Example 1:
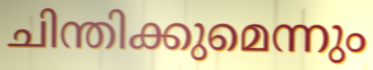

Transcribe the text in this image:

ചിന്തിക്കുമെന്നും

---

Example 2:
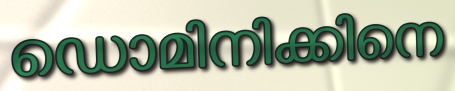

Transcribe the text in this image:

ഡൊമിനിക്കിനെ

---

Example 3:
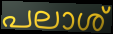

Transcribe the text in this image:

പലാശ്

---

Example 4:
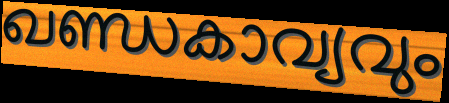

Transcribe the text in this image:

ഖണ്ഡകാവ്യവും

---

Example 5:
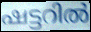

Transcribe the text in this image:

ഷട്ടറിൽ